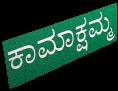
ಕಾಮಾಕ್ಷಮ್ಮ